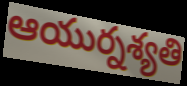
ఆయుర్నశ్యతి